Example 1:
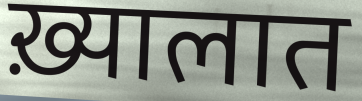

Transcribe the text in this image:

ख़्यालात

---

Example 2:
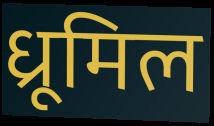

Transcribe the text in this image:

ध्रूमिल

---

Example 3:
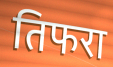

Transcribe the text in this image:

तिफरा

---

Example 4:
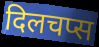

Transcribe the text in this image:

दिलचप्स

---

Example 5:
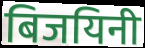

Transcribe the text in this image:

बिजयिनी